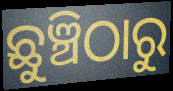
ଛୁଞ୍ଚିଠାରୁ